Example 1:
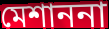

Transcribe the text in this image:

মেশাননা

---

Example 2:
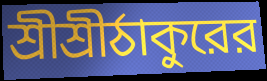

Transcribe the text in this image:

শ্রীশ্রীঠাকুরের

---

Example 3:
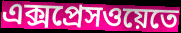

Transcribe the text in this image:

এক্সপ্রেসওয়েতে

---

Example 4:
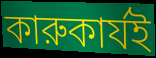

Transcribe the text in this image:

কারুকার্যই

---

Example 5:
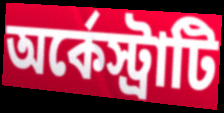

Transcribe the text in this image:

অর্কেস্ট্রাটি